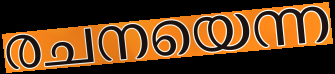
രചനയെന്ന